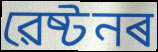
ৱেষ্টনৰ